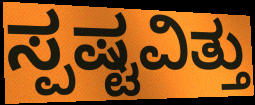
ಸ್ಪಷ್ಟವಿತ್ತು